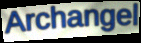
Archangel